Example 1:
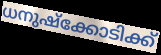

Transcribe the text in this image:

ധനുഷ്ക്കോടിക്ക്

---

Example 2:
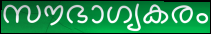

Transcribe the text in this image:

സൗഭാഗ്യകരം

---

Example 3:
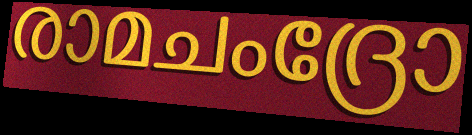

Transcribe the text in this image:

രാമചംദ്രോ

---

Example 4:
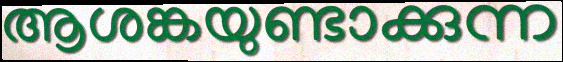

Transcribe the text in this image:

ആശങ്കയുണ്ടാക്കുന്ന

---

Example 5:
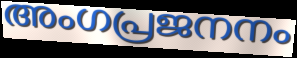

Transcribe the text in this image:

അംഗപ്രജനനം